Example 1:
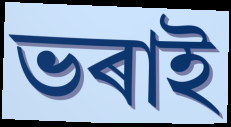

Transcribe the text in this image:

ভৰাই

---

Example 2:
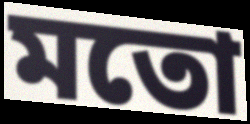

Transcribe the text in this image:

মতো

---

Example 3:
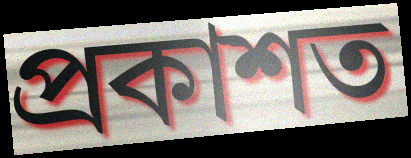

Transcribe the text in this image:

প্ৰকাশত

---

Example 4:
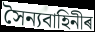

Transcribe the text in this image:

সৈন্যবাহিনীৰ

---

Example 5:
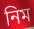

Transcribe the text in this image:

নিম